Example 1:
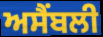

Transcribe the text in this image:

ਅਸੈਂਬਲੀ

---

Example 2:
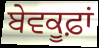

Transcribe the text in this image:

ਬੇਵਕੂਫ਼ਾਂ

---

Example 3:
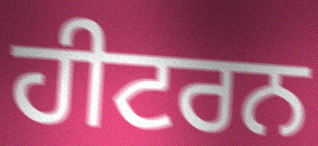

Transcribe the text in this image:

ਹੀਟਰਨ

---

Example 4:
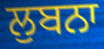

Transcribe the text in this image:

ਲੁਬਨਾ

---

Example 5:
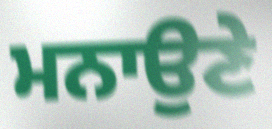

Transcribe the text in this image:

ਮਨਾਉਣੇ